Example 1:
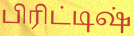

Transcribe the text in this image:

பிரிட்டிஷ்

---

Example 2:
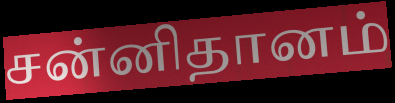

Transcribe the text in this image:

சன்னிதானம்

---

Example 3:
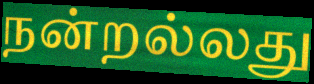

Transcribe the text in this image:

நன்றல்லது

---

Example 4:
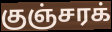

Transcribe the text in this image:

குஞ்சரக்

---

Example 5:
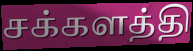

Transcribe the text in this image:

சக்களத்தி